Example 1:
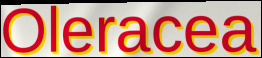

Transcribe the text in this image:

Oleracea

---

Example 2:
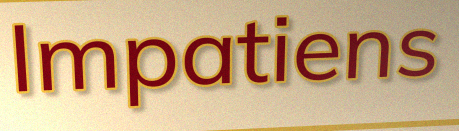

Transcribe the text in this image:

Impatiens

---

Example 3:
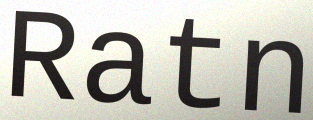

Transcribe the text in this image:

Ratn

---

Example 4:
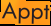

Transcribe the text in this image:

Appt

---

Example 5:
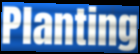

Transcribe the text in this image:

Planting